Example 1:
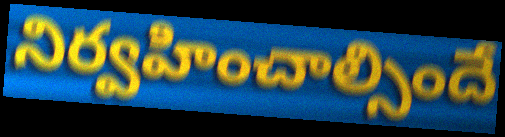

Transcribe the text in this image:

నిర్వహించాల్సిందే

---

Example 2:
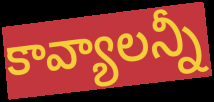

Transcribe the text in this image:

కావ్యాలన్నీ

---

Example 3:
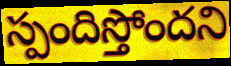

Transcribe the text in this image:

స్పందిస్తోందని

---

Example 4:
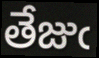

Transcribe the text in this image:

తేజుఁ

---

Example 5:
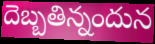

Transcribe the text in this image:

దెబ్బతిన్నందున